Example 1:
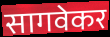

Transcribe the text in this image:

सागवेकर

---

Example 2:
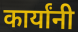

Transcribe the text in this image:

कार्यांनी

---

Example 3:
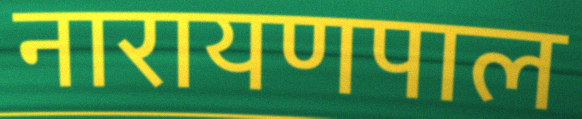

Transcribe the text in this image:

नारायणपाल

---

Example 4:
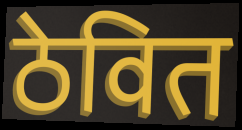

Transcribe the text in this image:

ठेवित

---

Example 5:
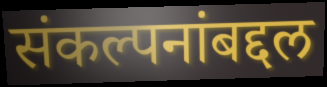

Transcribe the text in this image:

संकल्पनांबद्दल